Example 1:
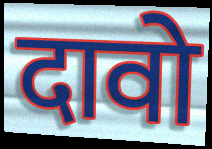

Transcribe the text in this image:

दावो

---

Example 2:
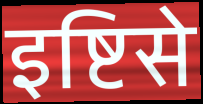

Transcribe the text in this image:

इष्टिसे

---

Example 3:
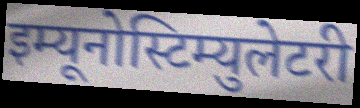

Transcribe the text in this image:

इम्यूनोस्टिम्युलेटरी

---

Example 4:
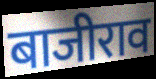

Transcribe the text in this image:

बाजीराव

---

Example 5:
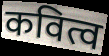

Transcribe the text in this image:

कवित्व